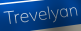
Trevelyan